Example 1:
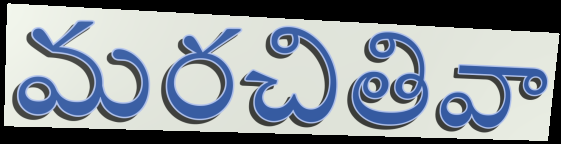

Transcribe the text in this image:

మరచితివా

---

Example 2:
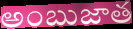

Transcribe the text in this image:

అంబుజాత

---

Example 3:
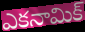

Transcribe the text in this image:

ఎకనామిక్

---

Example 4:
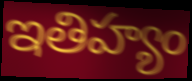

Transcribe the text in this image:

ఇతిహ్యం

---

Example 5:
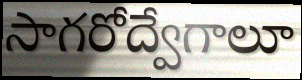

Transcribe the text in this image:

సాగరోద్వేగాలూ